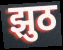
झुठ